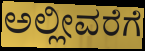
ಅಲ್ಲೀವರೆಗೆ